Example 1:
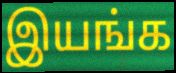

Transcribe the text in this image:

இயங்க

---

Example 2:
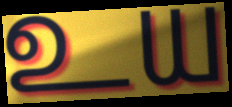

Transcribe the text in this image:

உய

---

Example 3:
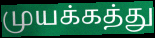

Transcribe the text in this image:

முயக்கத்து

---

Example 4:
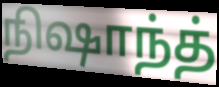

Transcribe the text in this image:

நிஷாந்த்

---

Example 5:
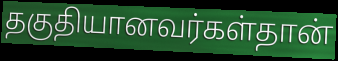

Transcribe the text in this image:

தகுதியானவர்கள்தான்